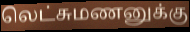
லெட்சுமணனுக்கு